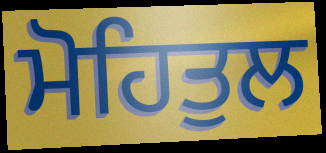
ਮੋਹਿਤੁਲ